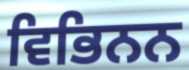
ਵਿਭਿਨਨ